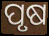
ପୃଷ